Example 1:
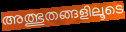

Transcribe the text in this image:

അത്ഭുതങ്ങളിലൂടെ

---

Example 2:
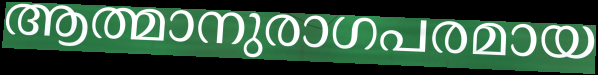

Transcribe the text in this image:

ആത്മാനുരാഗപരമായ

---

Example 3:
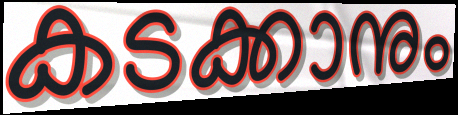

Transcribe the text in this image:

കടക്കാനും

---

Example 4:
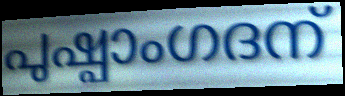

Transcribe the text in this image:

പുഷ്പാംഗദന്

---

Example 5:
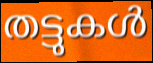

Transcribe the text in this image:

തട്ടുകൾ